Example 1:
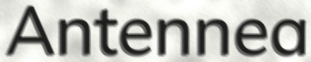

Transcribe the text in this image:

Antennea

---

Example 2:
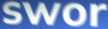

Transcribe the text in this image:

swor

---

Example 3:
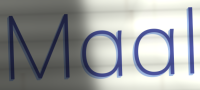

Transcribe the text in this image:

Maal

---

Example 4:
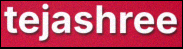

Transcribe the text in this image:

tejashree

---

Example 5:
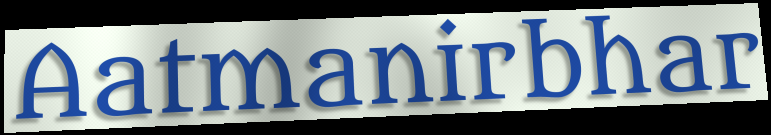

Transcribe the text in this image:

Aatmanirbhar